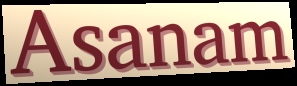
Asanam